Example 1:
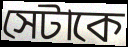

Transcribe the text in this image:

সেটাকে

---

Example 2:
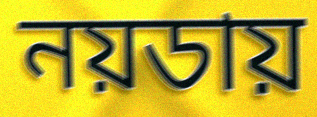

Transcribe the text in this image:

নয়ডায়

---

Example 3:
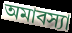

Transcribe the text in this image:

অমাবস্যা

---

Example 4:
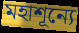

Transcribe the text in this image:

মহাশূন্যে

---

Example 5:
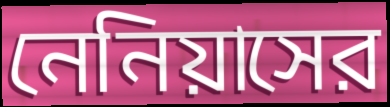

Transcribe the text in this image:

নেনিয়াসের